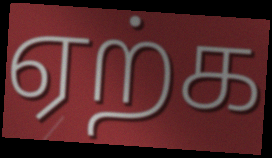
ஏற்க